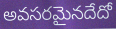
అవసరమైనదేదో